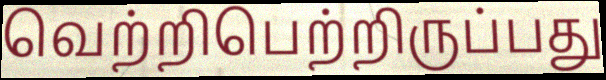
வெற்றிபெற்றிருப்பது